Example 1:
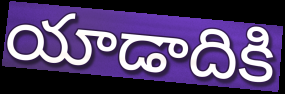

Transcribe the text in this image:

యాడాదికి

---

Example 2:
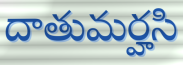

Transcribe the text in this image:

దాతుమర్హసి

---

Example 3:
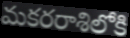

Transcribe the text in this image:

మకరరాశిలోకి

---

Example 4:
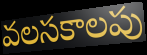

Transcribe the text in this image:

వలసకాలపు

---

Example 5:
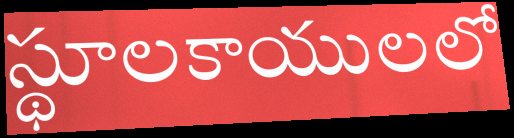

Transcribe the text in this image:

స్థూలకాయులలో